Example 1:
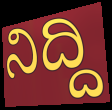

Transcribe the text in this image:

ನಿದ್ದಿ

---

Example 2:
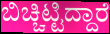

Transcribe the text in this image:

ಬಿಚ್ಚಿಟ್ಟಿದ್ದಾರೆ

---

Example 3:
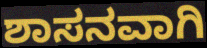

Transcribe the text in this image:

ಶಾಸನವಾಗಿ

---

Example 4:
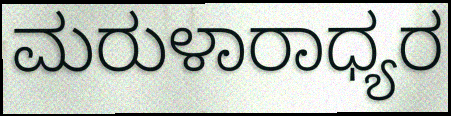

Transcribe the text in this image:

ಮರುಳಾರಾಧ್ಯರ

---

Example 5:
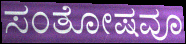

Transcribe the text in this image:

ಸಂತೋಷವೂ